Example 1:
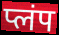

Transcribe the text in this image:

प्लंप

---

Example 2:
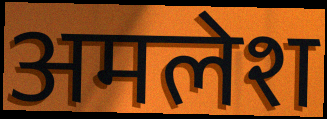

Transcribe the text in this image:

अमलेश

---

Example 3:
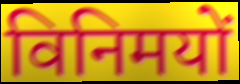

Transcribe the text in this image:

विनिमयों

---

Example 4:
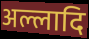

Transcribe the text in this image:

अल्लादि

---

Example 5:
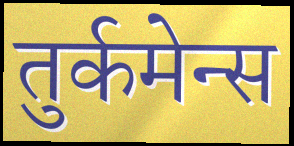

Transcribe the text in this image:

तुर्कमेन्स